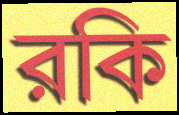
রকি